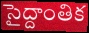
సైద్దాంతిక